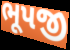
ભૂપજી